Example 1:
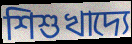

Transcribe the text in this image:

শিশুখাদ্যে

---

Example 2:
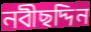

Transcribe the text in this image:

নবীছদ্দিন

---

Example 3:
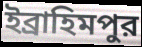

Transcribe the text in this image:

ইব্রাহিমপুর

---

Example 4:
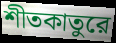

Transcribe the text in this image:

শীতকাতুরে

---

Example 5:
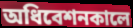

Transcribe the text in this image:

অধিবেশনকালে